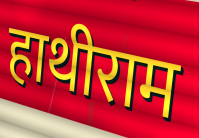
हाथीराम